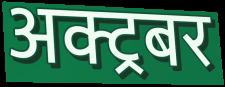
अक्ट्रबर